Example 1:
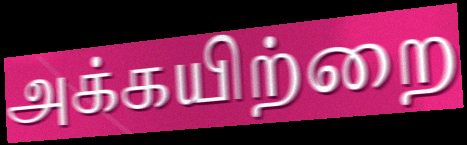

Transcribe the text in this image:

அக்கயிற்றை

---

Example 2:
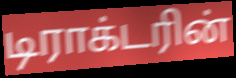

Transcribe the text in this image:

டிராக்டரின்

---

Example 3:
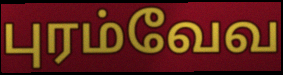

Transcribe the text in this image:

புரம்வேவ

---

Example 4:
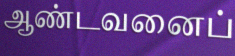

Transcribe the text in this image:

ஆண்டவனைப்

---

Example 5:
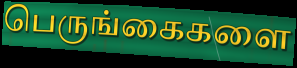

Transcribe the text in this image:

பெருங்கைகளை